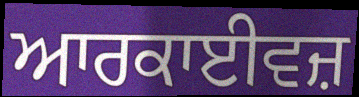
ਆਰਕਾਈਵਜ਼